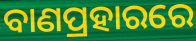
ବାଣପ୍ରହାରରେ